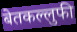
बेतकल्लुफी